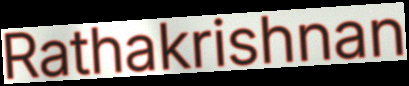
Rathakrishnan